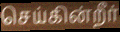
செய்கின்றீர்